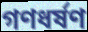
গণধর্ষণ